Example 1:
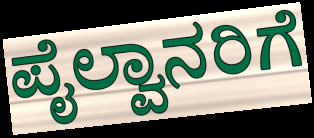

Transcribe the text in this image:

ಪೈಲ್ವಾನರಿಗೆ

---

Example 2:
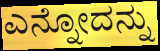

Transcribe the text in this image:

ಎನ್ನೋದನ್ನು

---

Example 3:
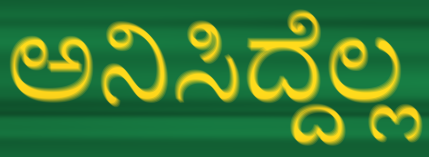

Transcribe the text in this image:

ಅನಿಸಿದ್ದೆಲ್ಲ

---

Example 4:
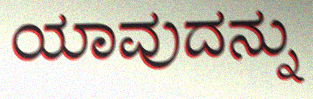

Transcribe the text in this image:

ಯಾವುದನ್ನು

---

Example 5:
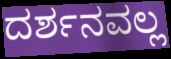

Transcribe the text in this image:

ದರ್ಶನವಲ್ಲ